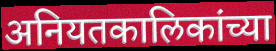
अनियतकालिकांच्या